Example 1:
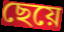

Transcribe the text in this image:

ছেয়ে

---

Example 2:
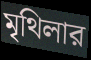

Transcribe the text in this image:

মৃথিলার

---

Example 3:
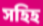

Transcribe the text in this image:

সহিহ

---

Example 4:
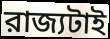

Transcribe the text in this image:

রাজ্যটাই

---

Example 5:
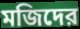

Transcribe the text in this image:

মজিদের